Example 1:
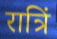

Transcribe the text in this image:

रात्रिं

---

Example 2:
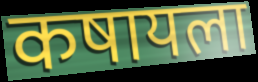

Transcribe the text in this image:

कषायला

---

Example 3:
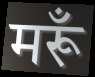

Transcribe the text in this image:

मरूँ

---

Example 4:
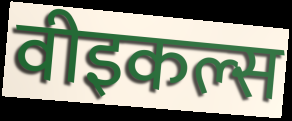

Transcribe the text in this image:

वीइकल्‍स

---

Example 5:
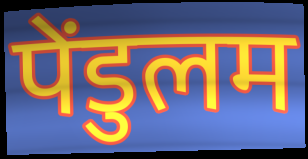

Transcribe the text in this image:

पेंडुलम